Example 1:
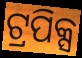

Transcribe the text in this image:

ଟ୍ରପିକ୍ସ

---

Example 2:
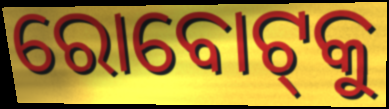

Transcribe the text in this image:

ରୋବୋଟ୍‌କୁ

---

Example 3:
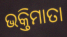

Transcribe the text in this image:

ଭକ୍ତିମାତା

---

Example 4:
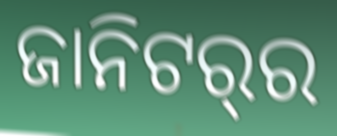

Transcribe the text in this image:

ଜାନିଟର୍‌ର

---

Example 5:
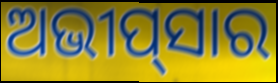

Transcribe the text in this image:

ଅଭୀପ୍‌ସାର